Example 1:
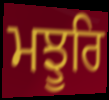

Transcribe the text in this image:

ਮਝੂਰਿ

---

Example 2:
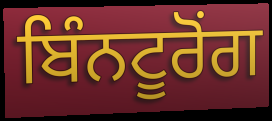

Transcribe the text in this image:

ਬਿੰਨਟੂਰੋਂਗ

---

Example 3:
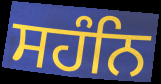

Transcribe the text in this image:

ਸਹੰਨਿ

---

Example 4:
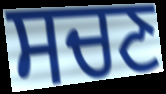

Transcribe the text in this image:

ਸਚਣ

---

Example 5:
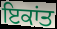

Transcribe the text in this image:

ਇਕਾਂਤ